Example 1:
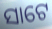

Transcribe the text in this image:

ସାଟେ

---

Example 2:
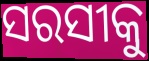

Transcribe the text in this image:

ସରସୀକୁ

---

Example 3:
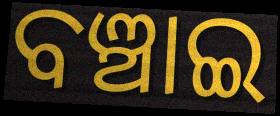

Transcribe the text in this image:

ବଞ୍ଚାଇ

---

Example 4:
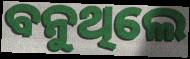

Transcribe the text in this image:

ବନୁଥିଲେ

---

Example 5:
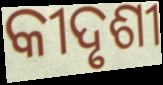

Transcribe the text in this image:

କୀଦୃଶୀ